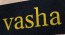
vasha